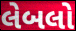
લેબલો